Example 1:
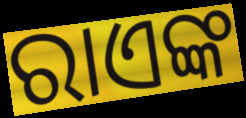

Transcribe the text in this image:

ରାଏଙ୍କ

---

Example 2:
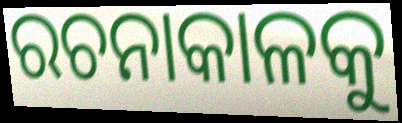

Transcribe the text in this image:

ରଚନାକାଳକୁ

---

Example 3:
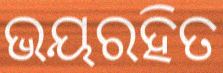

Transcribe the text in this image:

ଭୟରହିତ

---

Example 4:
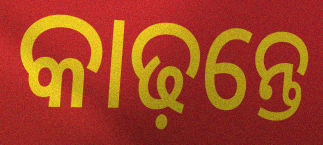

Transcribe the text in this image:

କାଢ଼ନ୍ତେ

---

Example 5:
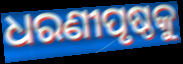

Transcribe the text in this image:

ଧରଣୀପୃଷ୍ଠକୁ